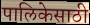
पालिकेसाठी